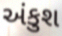
અંકુશ